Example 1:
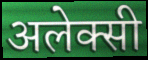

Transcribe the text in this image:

अलेक्सी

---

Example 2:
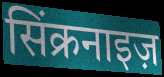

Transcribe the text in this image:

सिंक्रनाइज़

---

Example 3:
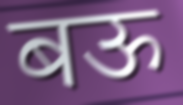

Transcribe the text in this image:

बऊ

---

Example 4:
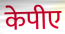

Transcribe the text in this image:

केपीए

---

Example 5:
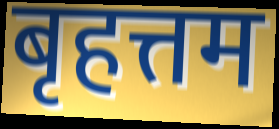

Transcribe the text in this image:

बृहत्तम